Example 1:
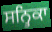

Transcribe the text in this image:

ਸਨ੍ਤਿਕਾ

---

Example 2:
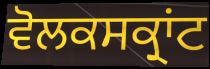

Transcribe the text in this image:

ਵੋਲਕਸਕ੍ਰਾਂਟ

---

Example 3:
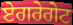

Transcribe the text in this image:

ਏਗਰੇਗੇਟ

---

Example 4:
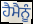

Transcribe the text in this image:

ਹੈਮੈਨੂੰ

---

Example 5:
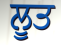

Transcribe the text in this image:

ਲੂਤ